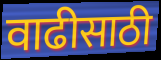
वाढीसाठी